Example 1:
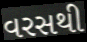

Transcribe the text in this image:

વરસથી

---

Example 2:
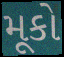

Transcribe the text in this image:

મૂકો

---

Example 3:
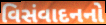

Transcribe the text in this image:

વિસંવાદનનો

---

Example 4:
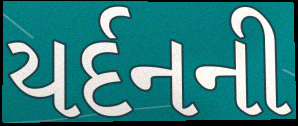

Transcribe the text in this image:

યર્દનની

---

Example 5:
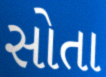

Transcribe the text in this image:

સોતા